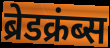
ब्रेडक्रंब्स